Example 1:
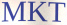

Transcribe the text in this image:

MKT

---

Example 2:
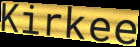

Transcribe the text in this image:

Kirkee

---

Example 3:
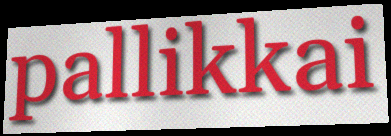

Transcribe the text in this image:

pallikkai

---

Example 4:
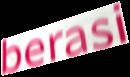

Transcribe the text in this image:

berasi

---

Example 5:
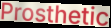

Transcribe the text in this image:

Prosthetic